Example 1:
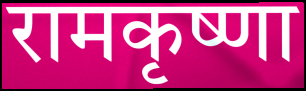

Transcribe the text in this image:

रामकृष्णा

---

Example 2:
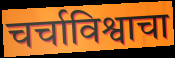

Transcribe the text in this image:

चर्चाविश्वाचा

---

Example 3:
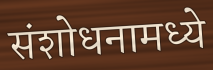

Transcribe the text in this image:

संशोधनामध्ये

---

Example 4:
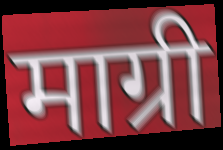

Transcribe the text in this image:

माग्री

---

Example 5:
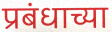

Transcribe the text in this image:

प्रबंधाच्या